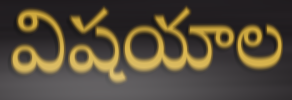
విషయాల